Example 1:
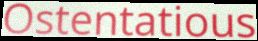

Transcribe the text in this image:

Ostentatious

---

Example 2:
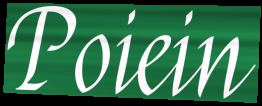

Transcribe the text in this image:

Poiein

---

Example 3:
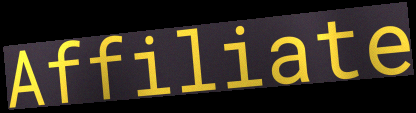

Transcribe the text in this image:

Affiliate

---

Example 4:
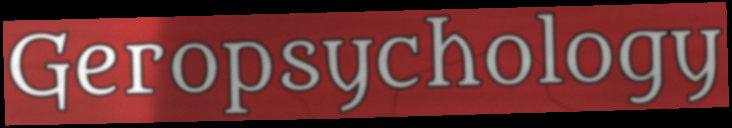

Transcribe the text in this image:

Geropsychology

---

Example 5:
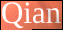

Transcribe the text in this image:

Qian